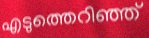
എടുത്തെറിഞ്ഞ്